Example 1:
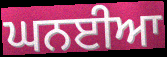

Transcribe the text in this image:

ਘਨਈਆ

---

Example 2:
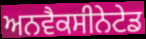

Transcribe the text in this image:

ਅਨਵੈਕਸੀਨੇਟੇਡ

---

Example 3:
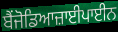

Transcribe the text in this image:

ਬੈਂਜੋਡਿਆਜ਼ਾਈਪਾਈਨ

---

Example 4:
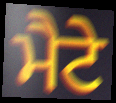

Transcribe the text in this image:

ਮੈਟੇ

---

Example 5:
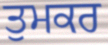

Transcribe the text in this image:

ਤੁਮਕਰ